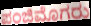
ಪಂಜಿಮೊಗರು